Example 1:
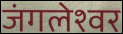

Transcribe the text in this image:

जंगलेश्वर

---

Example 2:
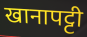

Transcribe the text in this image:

खानापट्टी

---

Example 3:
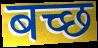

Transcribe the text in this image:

बच्छ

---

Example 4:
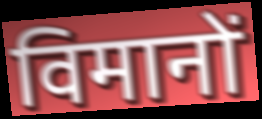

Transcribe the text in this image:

विमानों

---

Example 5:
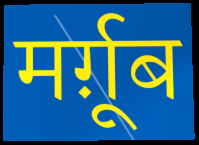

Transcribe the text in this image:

मर्ग़ूब